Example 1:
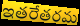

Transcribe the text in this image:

ఇతరేతరమ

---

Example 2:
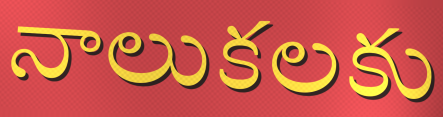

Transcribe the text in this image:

నాలుకలకు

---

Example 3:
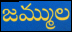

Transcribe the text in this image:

జమ్ముల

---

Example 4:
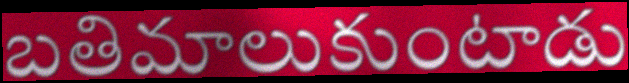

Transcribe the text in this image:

బతిమాలుకుంటాడు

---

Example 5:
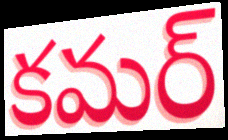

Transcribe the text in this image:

కమర్